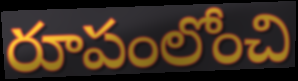
రూపంలోంచి